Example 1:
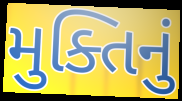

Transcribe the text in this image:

મુક્તિનું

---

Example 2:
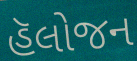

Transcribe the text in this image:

હૅલોજન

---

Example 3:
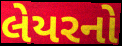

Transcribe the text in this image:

લેયરનો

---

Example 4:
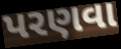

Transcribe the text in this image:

પરણવા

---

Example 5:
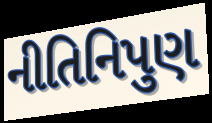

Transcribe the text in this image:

નીતિનિપુણ